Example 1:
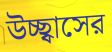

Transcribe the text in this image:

উচ্ছ্বাসের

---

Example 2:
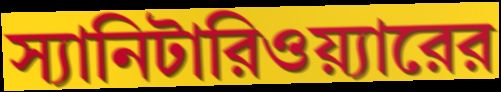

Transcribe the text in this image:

স্যানিটারিওয়্যারের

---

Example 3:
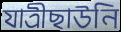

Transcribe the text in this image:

যাত্রীছাউনি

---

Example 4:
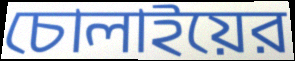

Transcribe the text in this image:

চোলাইয়ের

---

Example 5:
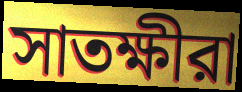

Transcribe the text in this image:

সাতক্ষীরা